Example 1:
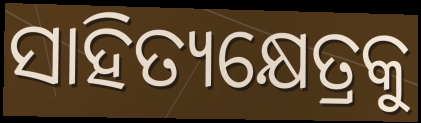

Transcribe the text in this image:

ସାହିତ୍ୟକ୍ଷେତ୍ରକୁ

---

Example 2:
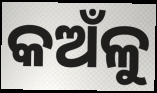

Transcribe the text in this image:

କଅଁଳୁ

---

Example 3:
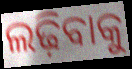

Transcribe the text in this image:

ଲଢ଼ିବାକୁ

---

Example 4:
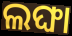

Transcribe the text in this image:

ଲଙ୍ଘା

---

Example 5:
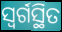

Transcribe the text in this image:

ସ୍ୱର୍ଗସ୍ଥିତ